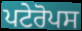
ਪਟੇਰੋਪਸ